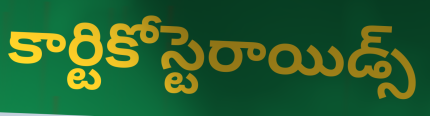
కార్టికోస్టెరాయిడ్స్